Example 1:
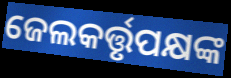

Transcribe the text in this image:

ଜେଲକର୍ତ୍ତୃପକ୍ଷଙ୍କ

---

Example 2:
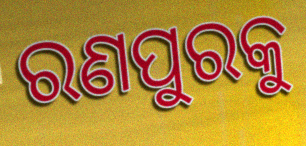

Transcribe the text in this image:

ରଣପୁରକୁ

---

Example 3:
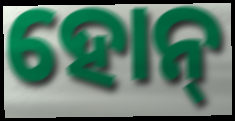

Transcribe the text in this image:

ହୋନ୍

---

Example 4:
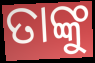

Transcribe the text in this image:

ତାଙ୍କୁ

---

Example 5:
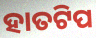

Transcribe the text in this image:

ହାତଟିପ